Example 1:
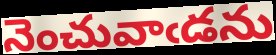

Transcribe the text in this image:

నెంచువాఁడను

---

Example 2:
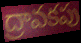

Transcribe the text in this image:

ద్రావకపు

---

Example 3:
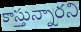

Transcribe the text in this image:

కాస్తున్నారని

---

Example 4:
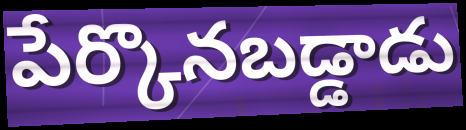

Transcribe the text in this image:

పేర్కొనబడ్డాడు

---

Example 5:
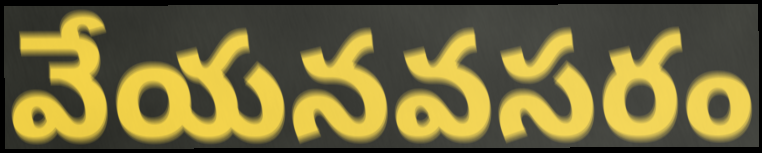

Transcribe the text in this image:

వేయనవసరం